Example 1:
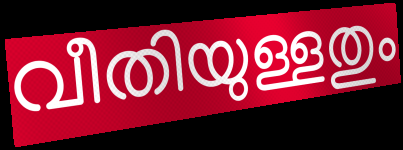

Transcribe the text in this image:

വീതിയുള്ളതും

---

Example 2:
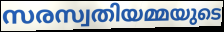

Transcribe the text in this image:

സരസ്വതിയമ്മയുടെ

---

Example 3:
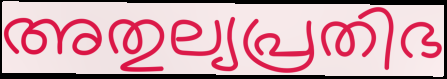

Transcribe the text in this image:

അതുല്യപ്രതിഭ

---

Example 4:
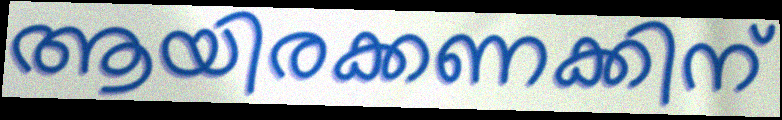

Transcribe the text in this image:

ആയിരക്കണക്കിന്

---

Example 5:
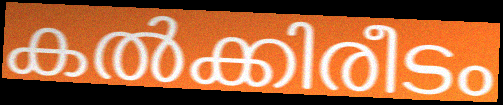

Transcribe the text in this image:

കൽക്കിരീടം